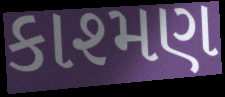
કાશ્મણ